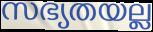
സഭ്യതയല്ല